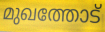
മുഖത്തോട്